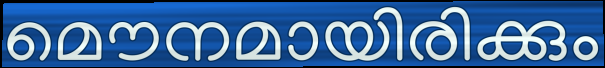
മൌനമായിരിക്കും